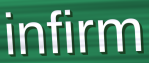
infirm